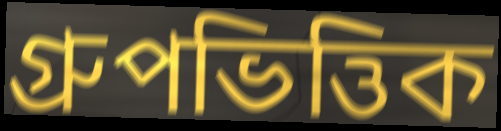
গ্রুপভিত্তিক